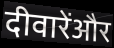
दीवारेंऔर